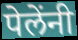
पेलेंनी